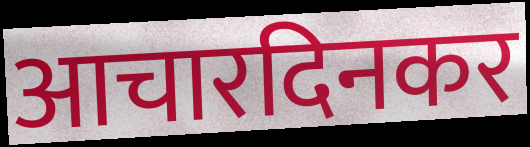
आचारदिनकर